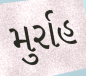
મુર્રાહ